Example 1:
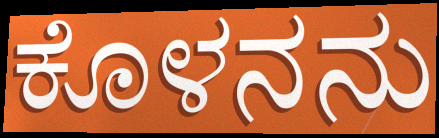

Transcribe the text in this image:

ಕೊಳನನು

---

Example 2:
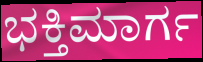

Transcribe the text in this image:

ಭಕ್ತಿಮಾರ್ಗ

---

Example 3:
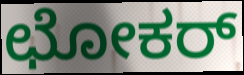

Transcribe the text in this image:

ಛೋಕರ್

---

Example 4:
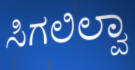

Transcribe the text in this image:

ಸಿಗಲಿಲ್ವಾ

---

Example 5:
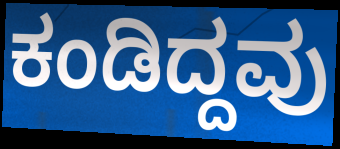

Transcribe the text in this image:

ಕಂಡಿದ್ದವು